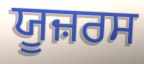
ਯੂਜ਼ਰਸ